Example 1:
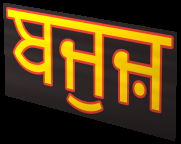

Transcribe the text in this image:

ਬਜੁਜ਼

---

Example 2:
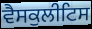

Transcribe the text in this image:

ਵੈਸਕੁਲੀਟਿਸ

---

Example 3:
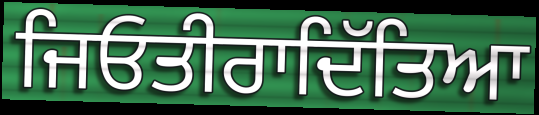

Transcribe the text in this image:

ਜਿਓਤੀਰਾਦਿੱਤਿਆ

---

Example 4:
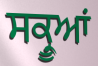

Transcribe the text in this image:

ਸਕ੍ਰੂਆਂ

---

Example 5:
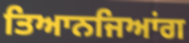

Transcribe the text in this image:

ਤਿਆਨਜਿਆਂਗ